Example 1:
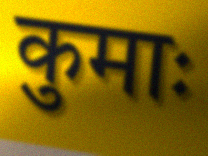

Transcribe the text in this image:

कुमाः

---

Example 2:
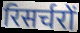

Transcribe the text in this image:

रिसर्चरों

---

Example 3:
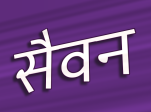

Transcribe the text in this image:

सैवन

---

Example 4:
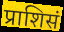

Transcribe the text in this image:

प्राशिसं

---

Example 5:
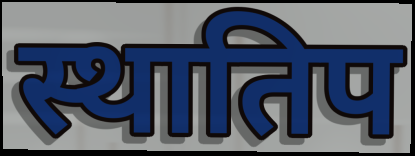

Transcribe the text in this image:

स्थातिप